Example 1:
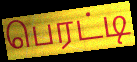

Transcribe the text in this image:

பெரட்டி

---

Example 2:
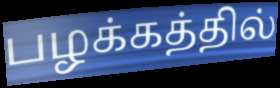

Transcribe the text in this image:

பழக்கத்தில்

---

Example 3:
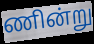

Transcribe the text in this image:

ணின்று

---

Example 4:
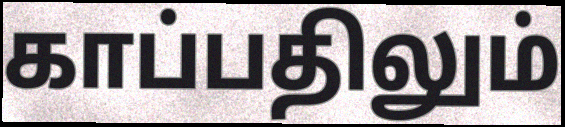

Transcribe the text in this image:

காப்பதிலும்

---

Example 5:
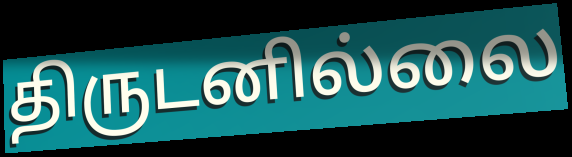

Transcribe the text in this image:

திருடனில்லை